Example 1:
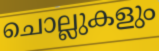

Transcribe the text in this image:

ചൊല്ലുകളും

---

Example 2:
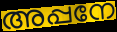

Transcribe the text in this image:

അപ്പനേ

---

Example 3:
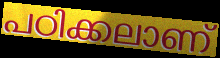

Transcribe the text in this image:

പഠിക്കലാണ്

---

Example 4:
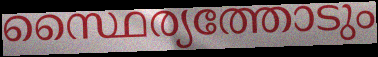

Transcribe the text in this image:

സ്ഥൈര്യത്തോടും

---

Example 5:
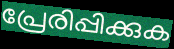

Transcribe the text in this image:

പ്രേരിപ്പിക്കുക